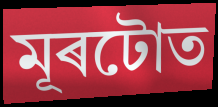
মূৰটোত